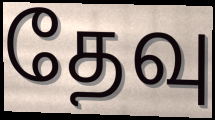
தேவு